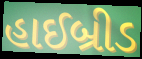
હાઈબ્રીડ